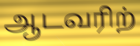
ஆடவரிற்